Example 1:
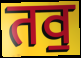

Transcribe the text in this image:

तव॒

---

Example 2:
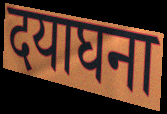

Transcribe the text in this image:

दयाघना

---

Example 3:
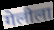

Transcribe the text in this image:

गेलीला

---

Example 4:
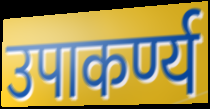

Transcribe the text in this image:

उपाकर्ण्य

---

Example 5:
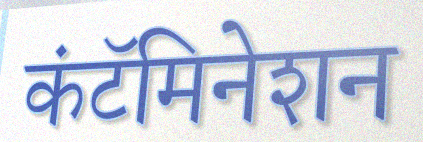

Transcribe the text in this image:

कंटॅमिनेशन